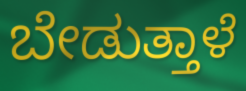
ಬೇಡುತ್ತಾಳೆ